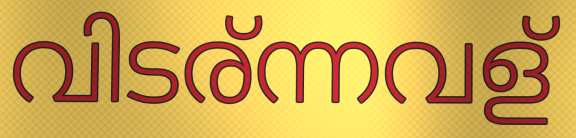
വിടര്ന്നവള്